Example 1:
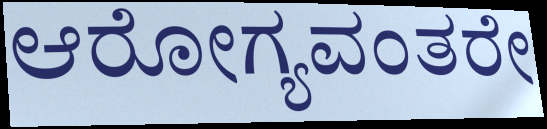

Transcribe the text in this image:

ಆರೋಗ್ಯವಂತರೇ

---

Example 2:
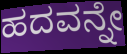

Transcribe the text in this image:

ಹದವನ್ನೇ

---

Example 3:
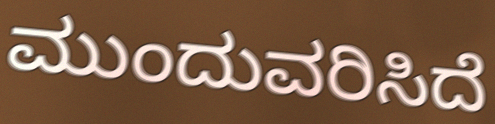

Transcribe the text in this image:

ಮುಂದುವರಿಸಿದೆ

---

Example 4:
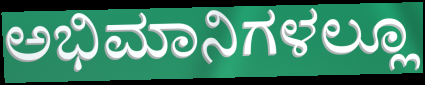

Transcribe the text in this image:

ಅಭಿಮಾನಿಗಳಲ್ಲೂ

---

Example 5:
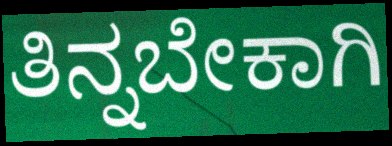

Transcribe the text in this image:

ತಿನ್ನಬೇಕಾಗಿ